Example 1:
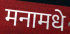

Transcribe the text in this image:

मनामधे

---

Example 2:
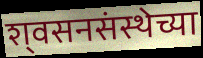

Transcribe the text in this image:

श्वसनसंस्थेच्या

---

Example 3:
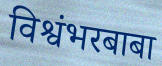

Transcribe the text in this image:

विश्वंभरबाबा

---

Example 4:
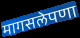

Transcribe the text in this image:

मागसलेपणा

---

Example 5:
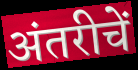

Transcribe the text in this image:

अंतरीचें